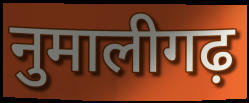
नुमालीगढ़